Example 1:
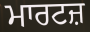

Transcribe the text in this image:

ਮਾਰਟਜ਼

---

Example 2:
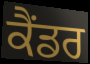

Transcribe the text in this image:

ਕੈਂਡਰ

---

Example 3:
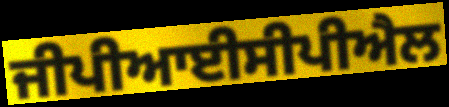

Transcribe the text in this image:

ਜੀਪੀਆਈਸੀਪੀਐਲ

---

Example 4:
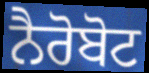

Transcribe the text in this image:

ਨੈਰੋਬੋਟ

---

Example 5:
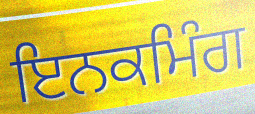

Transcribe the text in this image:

ਇਨਕਮਿੰਗ